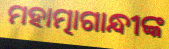
ମହାତ୍ମାଗାନ୍ଧୀଙ୍କ